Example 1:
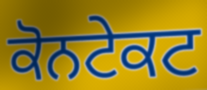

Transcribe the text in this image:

ਕੋਨਟੇਕਟ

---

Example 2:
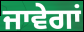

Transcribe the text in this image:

ਜਾਵੇਗਾਂ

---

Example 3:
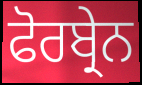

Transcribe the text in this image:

ਫੋਰਬ੍ਰੇਨ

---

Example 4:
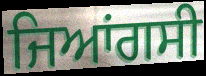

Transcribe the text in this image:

ਜਿਆਂਗਸੀ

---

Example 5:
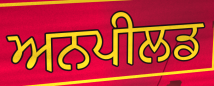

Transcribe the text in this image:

ਅਨਪੀਲਡ